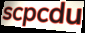
scpcdu